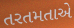
તરતમતાએ